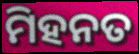
ମିହନତ